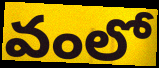
వంలో